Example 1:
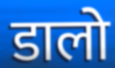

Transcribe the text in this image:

डालो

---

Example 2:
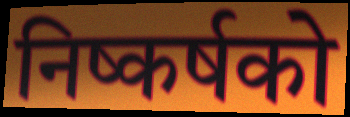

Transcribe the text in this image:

निष्कर्षको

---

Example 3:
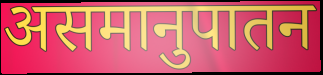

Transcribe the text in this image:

असमानुपातन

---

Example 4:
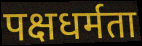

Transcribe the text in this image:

पक्षधर्मता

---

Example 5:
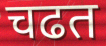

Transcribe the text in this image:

चढत